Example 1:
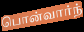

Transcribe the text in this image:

பொன்வார்ந்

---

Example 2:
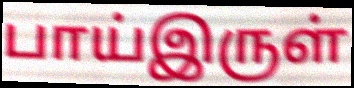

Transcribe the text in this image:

பாய்இருள்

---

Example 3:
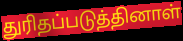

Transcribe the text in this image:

துரிதப்படுத்தினாள்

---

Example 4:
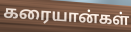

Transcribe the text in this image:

கரையான்கள்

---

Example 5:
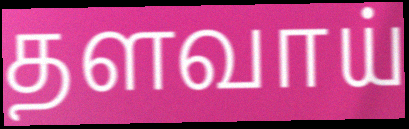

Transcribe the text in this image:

தளவாய்